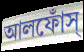
আলফোঁস্